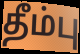
தீம்பு